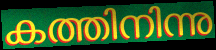
കത്തിനിന്നു